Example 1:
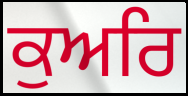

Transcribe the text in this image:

ਕੁਅਰਿ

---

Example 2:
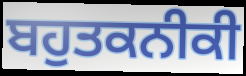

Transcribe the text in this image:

ਬਹੁਤਕਨੀਕੀ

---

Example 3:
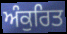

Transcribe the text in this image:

ਅੰਕੁਰਿਤ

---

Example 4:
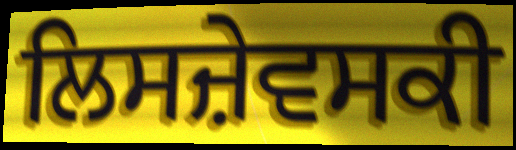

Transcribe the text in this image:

ਲਿਸਜ਼ੇਵਸਕੀ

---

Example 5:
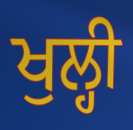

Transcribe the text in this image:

ਖੁਲ੍ਹੀ